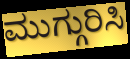
ಮುಗ್ಗುರಿಸಿ